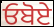
ਓਬੋਏ